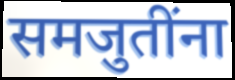
समजुतींना